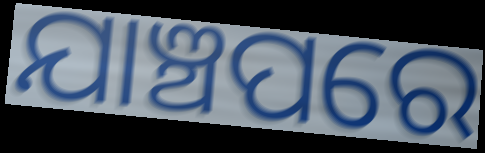
ଯାଞ୍ଚପରେ